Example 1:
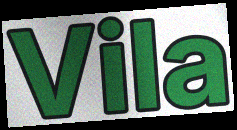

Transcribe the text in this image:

Vila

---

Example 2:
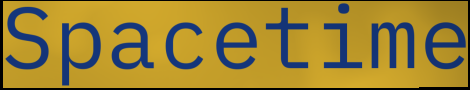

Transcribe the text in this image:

Spacetime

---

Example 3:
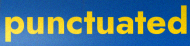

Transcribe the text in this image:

punctuated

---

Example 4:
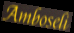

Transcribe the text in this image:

Amboseli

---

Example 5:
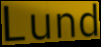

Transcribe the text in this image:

Lund